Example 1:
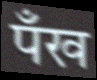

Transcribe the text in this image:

पँख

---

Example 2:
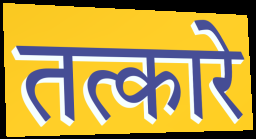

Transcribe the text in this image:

तत्कारे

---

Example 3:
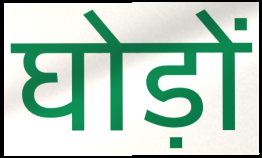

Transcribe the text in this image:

घोड़ों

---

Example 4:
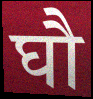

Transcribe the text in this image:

घौ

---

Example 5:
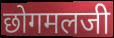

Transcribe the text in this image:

छोगमलजी